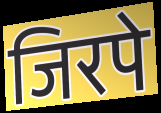
जिरपे